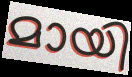
മായി